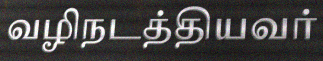
வழிநடத்தியவர்